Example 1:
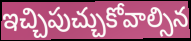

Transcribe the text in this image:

ఇచ్చిపుచ్చుకోవాల్సిన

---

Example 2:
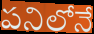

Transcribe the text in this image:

పనిలోనే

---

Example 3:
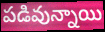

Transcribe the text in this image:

పడివున్నాయి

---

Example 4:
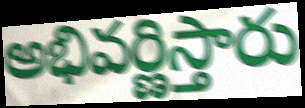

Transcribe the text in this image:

అభివర్ణిస్తారు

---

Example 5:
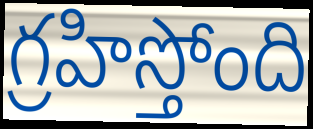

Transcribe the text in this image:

గ్రహిస్తోంది